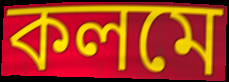
কলমে